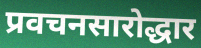
प्रवचनसारोद्धार